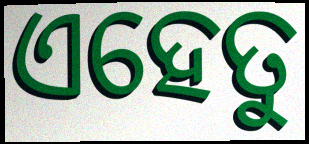
ଏହେତୁ